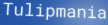
Tulipmania